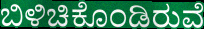
ಬಿಳಿಚಿಕೊಂಡಿರುವೆ